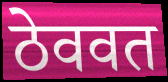
ठेववत